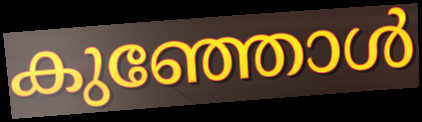
കുഞ്ഞോൾ